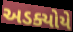
અડક્યોયે